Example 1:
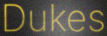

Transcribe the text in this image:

Dukes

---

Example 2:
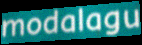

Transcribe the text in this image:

modalagu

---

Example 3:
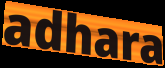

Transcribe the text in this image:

adhara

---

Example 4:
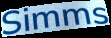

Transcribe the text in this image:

Simms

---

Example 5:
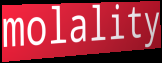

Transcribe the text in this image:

molality